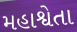
મહાશ્વેતા